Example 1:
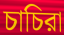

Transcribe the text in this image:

চাচিরা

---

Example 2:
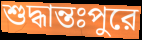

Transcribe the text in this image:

শুদ্ধান্তঃপুরে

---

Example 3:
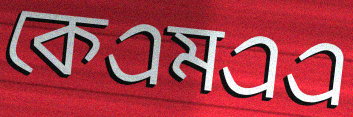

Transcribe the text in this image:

কেএমএএ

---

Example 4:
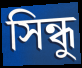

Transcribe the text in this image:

সিন্ধু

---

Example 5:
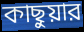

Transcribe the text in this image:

কাছুয়ার